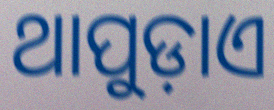
ଥାପୁଡ଼ାଏ